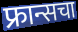
फ्रान्सचा